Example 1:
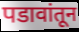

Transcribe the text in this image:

पडावांतून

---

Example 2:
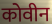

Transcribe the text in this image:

कोवीन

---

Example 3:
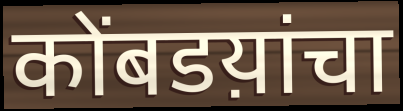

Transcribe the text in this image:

कोंबडय़ांचा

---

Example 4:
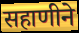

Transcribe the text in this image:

सहाणीने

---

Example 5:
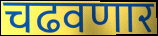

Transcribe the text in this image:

चढवणार